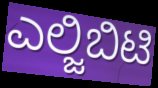
ಎಲ್ಜಿಬಿಟಿ